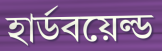
হার্ডবয়েল্ড